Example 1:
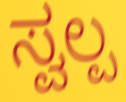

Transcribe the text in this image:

ಸ್ವಲ್ಪ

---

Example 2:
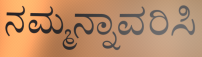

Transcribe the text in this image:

ನಮ್ಮನ್ನಾವರಿಸಿ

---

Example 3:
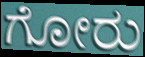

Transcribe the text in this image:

ಗೋರು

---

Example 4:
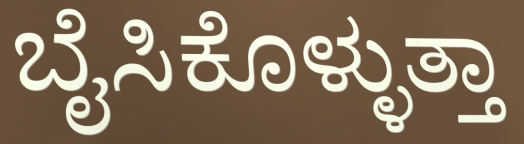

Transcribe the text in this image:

ಬೈಸಿಕೊಳ್ಳುತ್ತಾ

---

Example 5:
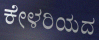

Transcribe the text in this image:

ಕೇಳರಿಯದ